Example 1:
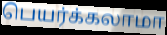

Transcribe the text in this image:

பெயர்க்கலாமா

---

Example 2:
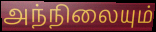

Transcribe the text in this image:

அந்நிலையும்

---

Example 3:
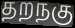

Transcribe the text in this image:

தறநகு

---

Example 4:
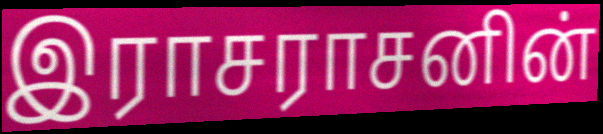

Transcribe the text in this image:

இராசராசனின்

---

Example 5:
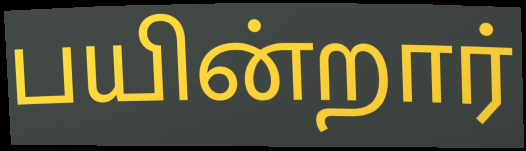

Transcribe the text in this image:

பயின்றார்